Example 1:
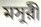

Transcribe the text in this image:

মসুরী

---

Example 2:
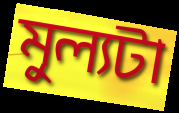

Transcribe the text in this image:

মুল্যটা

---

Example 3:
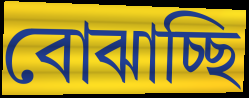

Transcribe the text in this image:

বোঝাচ্ছি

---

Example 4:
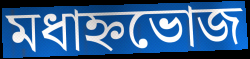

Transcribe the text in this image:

মধাহ্নভোজ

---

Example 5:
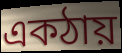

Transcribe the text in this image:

একঠায়